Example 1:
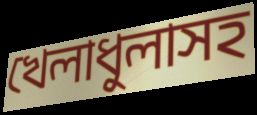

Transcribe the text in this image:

খেলাধুলাসহ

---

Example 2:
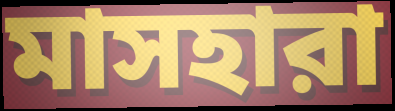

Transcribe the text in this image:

মাসহারা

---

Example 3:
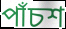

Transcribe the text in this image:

পাঁচশ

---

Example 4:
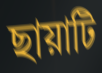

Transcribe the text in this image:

ছায়াটি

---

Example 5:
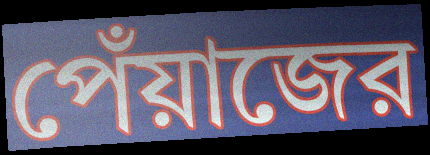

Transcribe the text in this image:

পেঁয়াজের